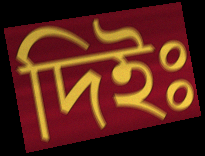
দিইঃ